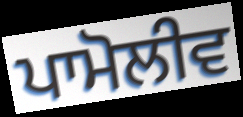
ਪਾਮੋਲੀਵ